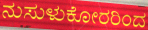
ನುಸುಳುಕೋರರಿಂದ